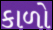
કાળો